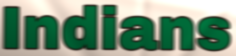
Indians